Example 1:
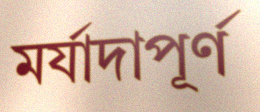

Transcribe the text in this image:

মর্যাদাপূর্ণ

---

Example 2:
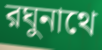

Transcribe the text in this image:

রঘুনাথে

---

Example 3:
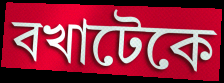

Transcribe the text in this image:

বখাটেকে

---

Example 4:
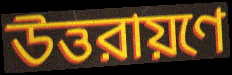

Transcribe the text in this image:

উত্তরায়ণে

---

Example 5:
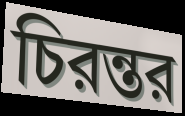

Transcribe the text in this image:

চিরন্তর